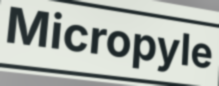
Micropyle